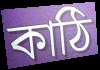
কাঠি